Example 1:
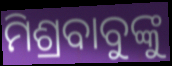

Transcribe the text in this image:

ମିଶ୍ରବାବୁଙ୍କୁ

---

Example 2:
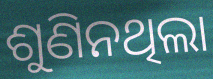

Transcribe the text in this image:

ଶୁଣିନଥିଲା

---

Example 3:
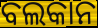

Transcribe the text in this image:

ବଲକାନ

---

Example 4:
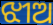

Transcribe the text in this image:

ଝୀଅ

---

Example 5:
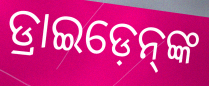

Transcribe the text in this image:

ଡ୍ରାଇଡ଼େନ୍‌ଙ୍କ